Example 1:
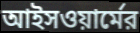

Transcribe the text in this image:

আইসওয়ার্মের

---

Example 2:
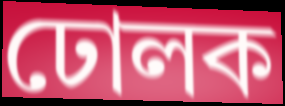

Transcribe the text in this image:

ঢোলক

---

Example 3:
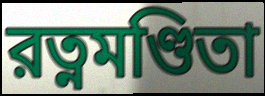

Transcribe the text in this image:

রত্নমণ্ডিতা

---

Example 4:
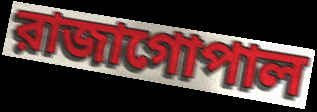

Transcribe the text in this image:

রাজাগোপাল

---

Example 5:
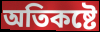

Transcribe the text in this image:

অতিকষ্টে